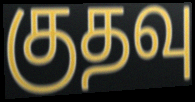
குதவு